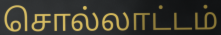
சொல்லாட்டம்